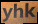
yhk